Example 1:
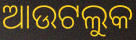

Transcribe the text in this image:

ଆଉଟଲୁକ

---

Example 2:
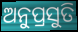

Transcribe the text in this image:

ଅନୁପ୍ରସୁତି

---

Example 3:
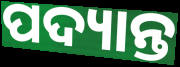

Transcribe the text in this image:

ପଦ୍ୟାନ୍ତ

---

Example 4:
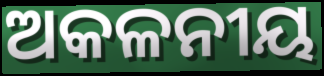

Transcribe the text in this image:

ଅକଳନୀୟ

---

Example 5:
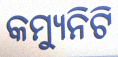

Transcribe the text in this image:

କମ୍ୟୁନିଟି